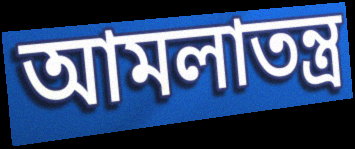
আমলাতন্ত্র